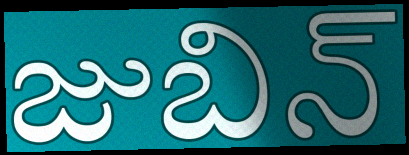
జుబిన్